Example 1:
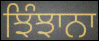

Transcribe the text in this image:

ਝਿੰਝਾਨਾ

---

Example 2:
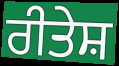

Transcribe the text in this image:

ਰੀਤੇਸ਼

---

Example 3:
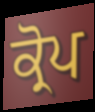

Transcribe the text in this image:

ਕ੍ਰੋਪ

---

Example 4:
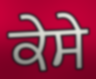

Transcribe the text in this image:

ਕੇਸੇ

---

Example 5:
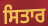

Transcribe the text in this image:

ਸਿਤਾਰ